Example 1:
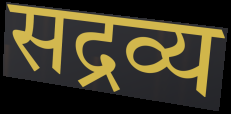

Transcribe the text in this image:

सद्रव्य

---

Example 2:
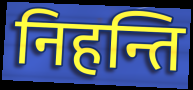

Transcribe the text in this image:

निहन्ति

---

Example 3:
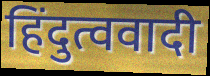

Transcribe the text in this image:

हिंदुत्ववादी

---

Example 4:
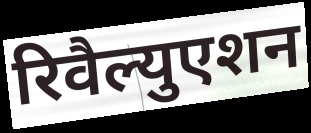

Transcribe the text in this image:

रिवैल्युएशन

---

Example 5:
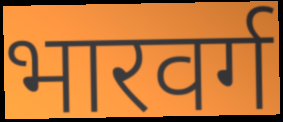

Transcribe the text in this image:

भारवर्ग